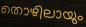
തൊഴിലായും